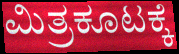
ಮಿತ್ರಕೂಟಕ್ಕೆ